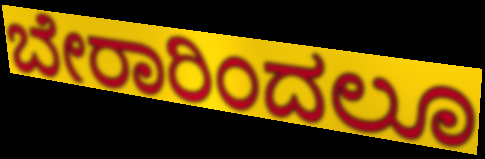
ಬೇರಾರಿಂದಲೂ